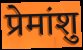
प्रेमांशु